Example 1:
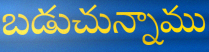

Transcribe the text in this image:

బడుచున్నాము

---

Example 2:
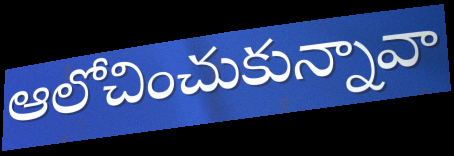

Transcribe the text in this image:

ఆలోచించుకున్నావా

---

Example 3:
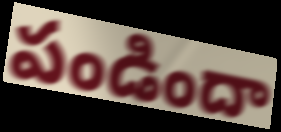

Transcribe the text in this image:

పండిందా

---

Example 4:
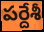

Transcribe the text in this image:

పర్దేశీ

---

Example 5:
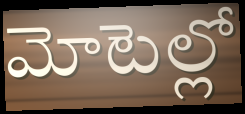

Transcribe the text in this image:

మోటెల్లో